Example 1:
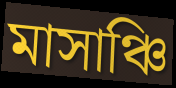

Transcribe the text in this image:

মাসাঞ্চি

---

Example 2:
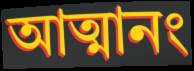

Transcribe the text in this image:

আত্মানং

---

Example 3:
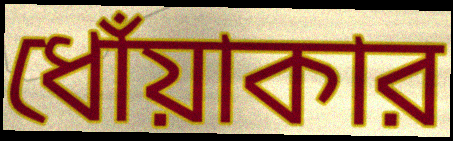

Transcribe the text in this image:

ধোঁয়াকার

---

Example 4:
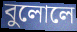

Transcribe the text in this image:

বুলোলে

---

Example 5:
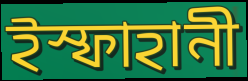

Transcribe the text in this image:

ইস্ফাহানী